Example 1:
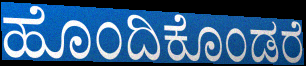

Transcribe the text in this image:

ಹೊಂದಿಕೊಂಡರೆ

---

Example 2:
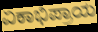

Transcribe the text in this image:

ಏಕಾಭಿಪ್ರಾಯ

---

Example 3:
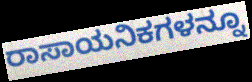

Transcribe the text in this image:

ರಾಸಾಯನಿಕಗಳನ್ನೂ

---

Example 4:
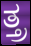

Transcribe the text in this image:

ತ್ತ್ರ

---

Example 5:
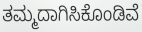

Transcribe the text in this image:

ತಮ್ಮದಾಗಿಸಿಕೊಂಡಿವೆ